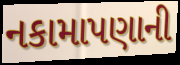
નકામાપણાની